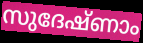
സുദേഷ്ണാം